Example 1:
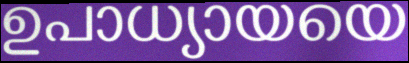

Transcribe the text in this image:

ഉപാധ്യായയെ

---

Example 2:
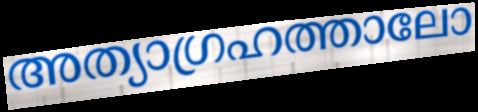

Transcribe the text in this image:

അത്യാഗ്രഹത്താലോ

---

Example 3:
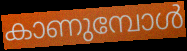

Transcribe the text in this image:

കാണുമ്പോൾ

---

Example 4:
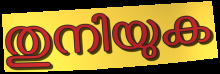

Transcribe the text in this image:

തുനിയുക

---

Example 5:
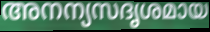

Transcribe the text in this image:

അനന്യസദൃശമായ